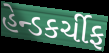
હેન્ડકર્ચીફ